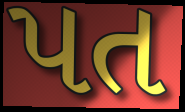
પત